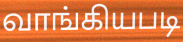
வாங்கியபடி